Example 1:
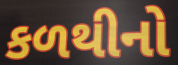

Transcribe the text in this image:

કળથીનો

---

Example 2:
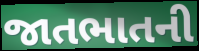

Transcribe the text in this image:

જાતભાતની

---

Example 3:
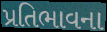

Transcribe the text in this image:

પ્રતિભાવના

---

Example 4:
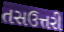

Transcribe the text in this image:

તસઉત્તરી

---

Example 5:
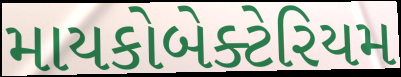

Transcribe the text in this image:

માયકોબેક્ટેરિયમ